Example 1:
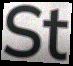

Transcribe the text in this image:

St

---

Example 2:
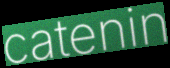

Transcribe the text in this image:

catenin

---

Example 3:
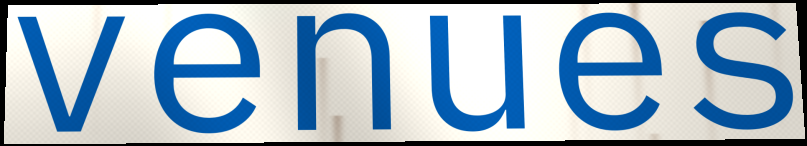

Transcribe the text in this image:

venues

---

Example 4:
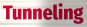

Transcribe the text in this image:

Tunneling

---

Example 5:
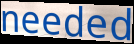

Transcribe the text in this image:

needed